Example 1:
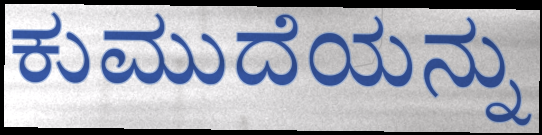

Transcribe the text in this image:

ಕುಮುದೆಯನ್ನು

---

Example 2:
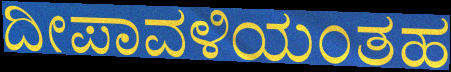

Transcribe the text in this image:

ದೀಪಾವಳಿಯಂತಹ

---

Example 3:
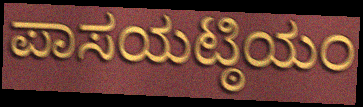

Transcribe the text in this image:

ಪಾಸಯಟ್ಠಿಯಂ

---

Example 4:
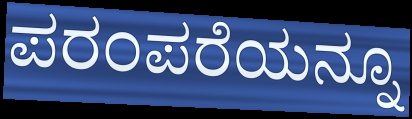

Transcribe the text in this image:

ಪರಂಪರೆಯನ್ನೂ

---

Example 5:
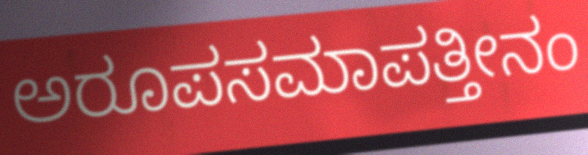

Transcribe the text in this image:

ಅರೂಪಸಮಾಪತ್ತೀನಂ